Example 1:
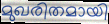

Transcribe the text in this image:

മുഖരിതമായി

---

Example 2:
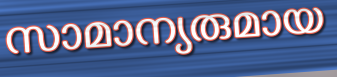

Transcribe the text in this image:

സാമാന്യരുമായ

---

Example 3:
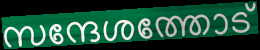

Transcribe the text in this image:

സന്ദേശത്തോട്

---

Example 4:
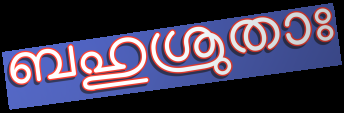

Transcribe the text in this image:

ബഹുശ്രുതാഃ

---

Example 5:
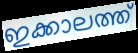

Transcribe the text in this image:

ഇക്കാലത്ത്